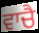
ਵਾਚੈ